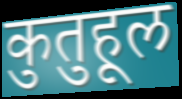
कुतुहूल